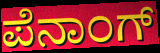
ಪೆನಾಂಗ್